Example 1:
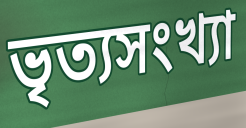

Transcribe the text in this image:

ভৃত্যসংখ্যা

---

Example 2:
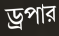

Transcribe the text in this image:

ড্রপার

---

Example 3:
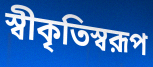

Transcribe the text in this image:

স্বীকৃতিস্বরূপ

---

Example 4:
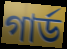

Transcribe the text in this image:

গার্ড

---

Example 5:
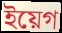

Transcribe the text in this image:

ইয়েগ